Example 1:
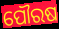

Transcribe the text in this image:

ପୌରଷ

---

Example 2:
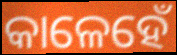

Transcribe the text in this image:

କାଳେହେଁ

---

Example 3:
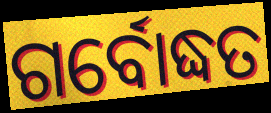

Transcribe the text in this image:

ଗର୍ବୋଦ୍ଧତ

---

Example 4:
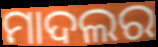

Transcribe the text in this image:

ମାଦଲର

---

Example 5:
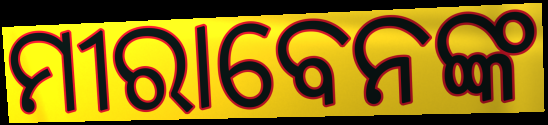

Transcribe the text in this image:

ମୀରାବେନଙ୍କ